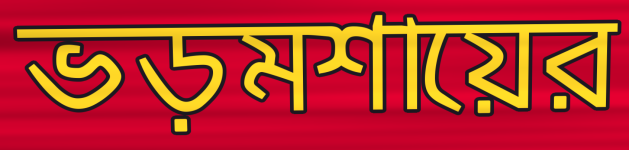
ভড়মশায়ের